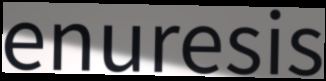
enuresis